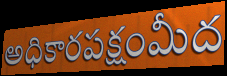
అధికారపక్షంమీద